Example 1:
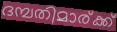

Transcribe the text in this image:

ദമ്പതിമാര്ക്ക്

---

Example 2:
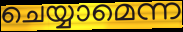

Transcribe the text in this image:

ചെയ്യാമെന്ന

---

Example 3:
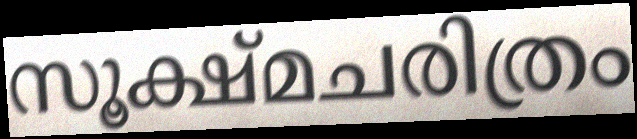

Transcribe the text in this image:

സൂക്ഷ്മചരിത്രം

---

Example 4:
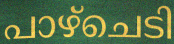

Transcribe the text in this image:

പാഴ്ചെടി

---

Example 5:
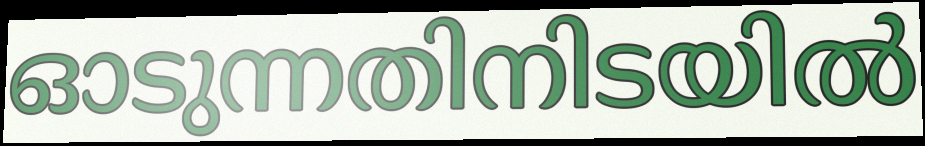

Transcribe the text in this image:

ഓടുന്നതിനിടയിൽ